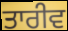
ਤਾਰੀਵ